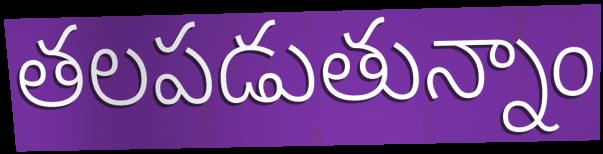
తలపడుతున్నాం